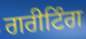
ਗਰੀਟਿੰਗ